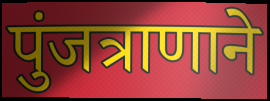
पुंजत्राणाने